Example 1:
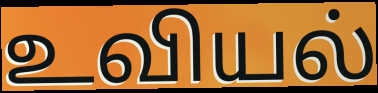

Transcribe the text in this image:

உவியல்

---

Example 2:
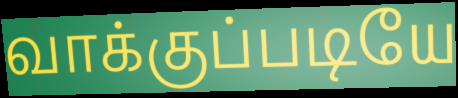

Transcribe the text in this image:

வாக்குப்படியே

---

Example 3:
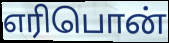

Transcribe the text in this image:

எரிபொன்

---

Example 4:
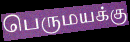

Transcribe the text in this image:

பெருமயக்கு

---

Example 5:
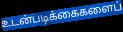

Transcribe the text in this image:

உடன்படிக்கைகளைப்